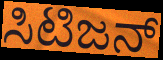
ಸಿಟಿಜನ್